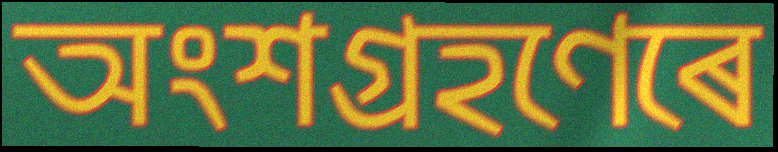
অংশগ্ৰহণেৰে